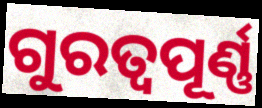
ଗୁରତ୍ୱପୂର୍ଣ୍ଣ